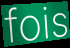
fois